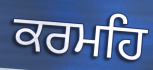
ਕਰਮਹਿ